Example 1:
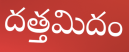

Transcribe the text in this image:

దత్తమిదం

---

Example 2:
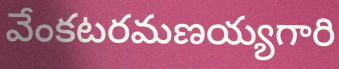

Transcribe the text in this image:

వేంకటరమణయ్యగారి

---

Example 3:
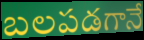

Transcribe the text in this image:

బలపడగానే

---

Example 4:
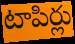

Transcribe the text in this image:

టాపిర్లు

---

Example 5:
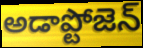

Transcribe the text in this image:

అడాప్టోజెన్